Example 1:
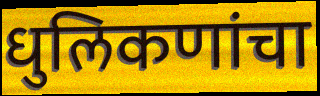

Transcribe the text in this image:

धुलिकणांचा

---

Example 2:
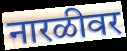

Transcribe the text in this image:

नारळीवर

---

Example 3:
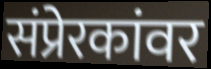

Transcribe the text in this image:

संप्रेरकांवर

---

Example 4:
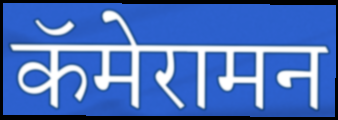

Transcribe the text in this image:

कॅमेरामन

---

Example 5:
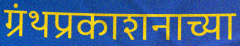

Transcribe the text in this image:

ग्रंथप्रकाशनाच्या